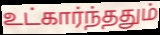
உட்கார்ந்ததும்